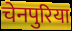
चेनपुरिया